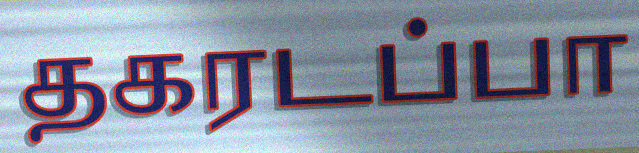
தகரடப்பா